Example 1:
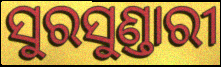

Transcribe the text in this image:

ସୁରସୁଣ୍ଡାରୀ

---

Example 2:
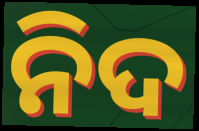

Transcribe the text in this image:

ନିଦ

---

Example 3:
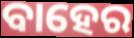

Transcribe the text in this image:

ବାହେର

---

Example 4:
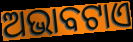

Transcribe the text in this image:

ଅଭାବଟାଏ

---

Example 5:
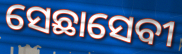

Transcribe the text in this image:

ସେଛାସେବୀ